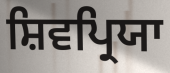
ਸ਼ਿਵਪ੍ਰਿਯਾ